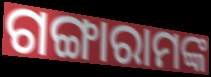
ଗଙ୍ଗାରାମଙ୍କ